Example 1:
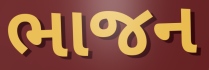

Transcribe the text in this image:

ભાજન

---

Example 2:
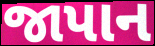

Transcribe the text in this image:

જાપાન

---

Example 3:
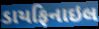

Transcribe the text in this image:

ડાયફિનાઇલ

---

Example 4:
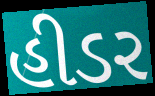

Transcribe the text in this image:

હીડર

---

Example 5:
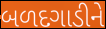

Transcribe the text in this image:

બળદગાડીને